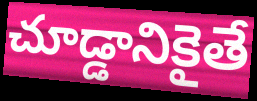
చూడ్డానికైతే